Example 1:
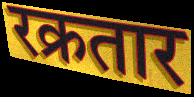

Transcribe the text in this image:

रक्रतार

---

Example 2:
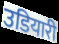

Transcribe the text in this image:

उडियारी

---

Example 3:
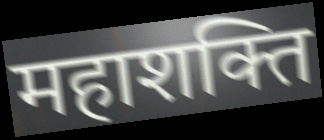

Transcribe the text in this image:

महाशक्ति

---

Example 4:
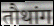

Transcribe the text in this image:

तौथांग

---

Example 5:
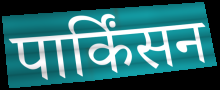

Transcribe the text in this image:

पार्किंसन